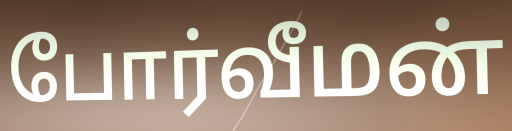
போர்வீமன்